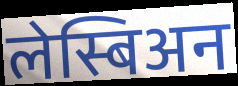
लेस्बिअन